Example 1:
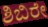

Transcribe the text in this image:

ಶಿಬಿರೇ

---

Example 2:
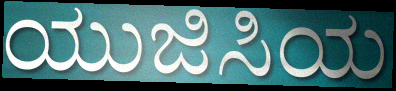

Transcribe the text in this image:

ಯುಜಿಸಿಯ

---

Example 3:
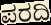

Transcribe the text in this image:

ಪರದಿ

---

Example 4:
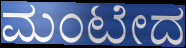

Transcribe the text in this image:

ಮಂಟೇದ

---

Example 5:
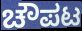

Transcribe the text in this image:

ಚೌಪಟ